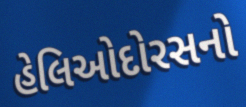
હેલિઓદોરસનો